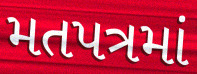
મતપત્રમાં